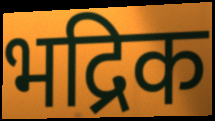
भद्रिक